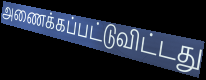
அணைக்கப்பட்டுவிட்டது